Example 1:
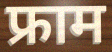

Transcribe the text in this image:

फ्राम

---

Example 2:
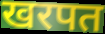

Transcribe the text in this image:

खरपत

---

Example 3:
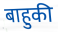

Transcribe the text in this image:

बाहुकी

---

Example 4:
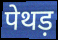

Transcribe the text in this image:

पेथड़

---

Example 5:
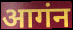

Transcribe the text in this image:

आगंन